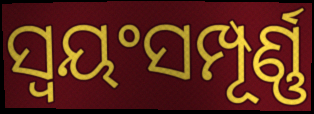
ସ୍ୱୟଂସମ୍ପୂର୍ଣ୍ଣ